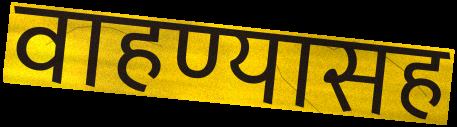
वाहण्यासह